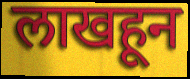
लाखहून